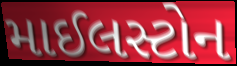
માઈલસ્ટોન